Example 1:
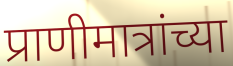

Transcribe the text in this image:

प्राणीमात्रांच्या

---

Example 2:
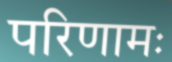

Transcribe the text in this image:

परिणामः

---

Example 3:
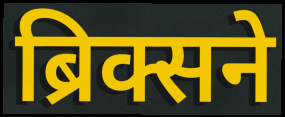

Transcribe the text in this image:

ब्रिक्सने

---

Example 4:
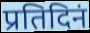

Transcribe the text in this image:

प्रतिदिनं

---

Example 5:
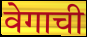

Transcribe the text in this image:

वेगाची